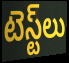
టెస్ట్‌లు